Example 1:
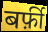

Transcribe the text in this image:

बर्फ़ी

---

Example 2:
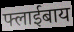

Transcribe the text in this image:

फ्लाईबाय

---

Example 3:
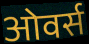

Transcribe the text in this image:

ओवर्स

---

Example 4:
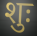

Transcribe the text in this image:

शुः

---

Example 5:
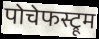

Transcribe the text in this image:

पोचेफस्ट्रूम